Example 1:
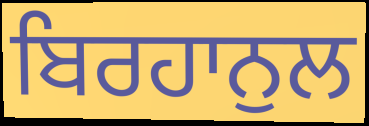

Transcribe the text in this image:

ਬਿਰਹਾਨੁਲ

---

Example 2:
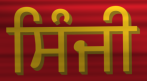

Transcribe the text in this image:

ਸਿੰਜੀ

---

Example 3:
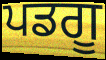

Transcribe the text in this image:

ਪਡਗੂ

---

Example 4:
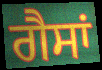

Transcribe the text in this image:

ਗੈਸਾਂ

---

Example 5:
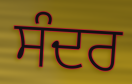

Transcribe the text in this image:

ਸੰਦਰ